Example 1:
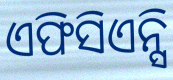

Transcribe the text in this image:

ଏଫିସିଏନ୍ସି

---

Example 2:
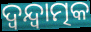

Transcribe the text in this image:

ଦ୍ଵନ୍ଦ୍ଵାତ୍ମକ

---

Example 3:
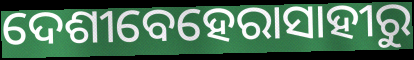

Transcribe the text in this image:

ଦେଶୀବେହେରାସାହୀରୁ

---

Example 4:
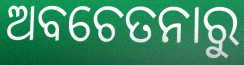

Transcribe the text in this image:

ଅବଚେତନାରୁ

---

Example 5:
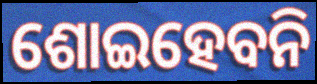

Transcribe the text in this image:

ଶୋଇହେବନି